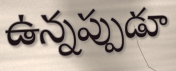
ఉన్నప్పుడూ